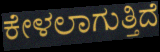
ಕೇಳಲಾಗುತ್ತಿದೆ